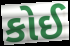
કોઈ